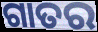
ଗାତର